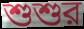
শুশুর